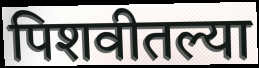
पिशवीतल्या